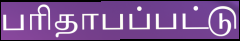
பரிதாபப்பட்டு